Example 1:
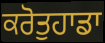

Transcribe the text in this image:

ਕਰੋਤੁਹਾਡਾ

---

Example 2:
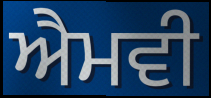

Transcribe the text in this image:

ਐਮਵੀ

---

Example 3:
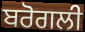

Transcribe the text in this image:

ਬਰੋਗਲੀ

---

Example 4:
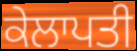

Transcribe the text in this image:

ਕੇਲਾਪਤੀ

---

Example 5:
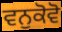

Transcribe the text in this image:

ਵਨੁਕੋਵੋ